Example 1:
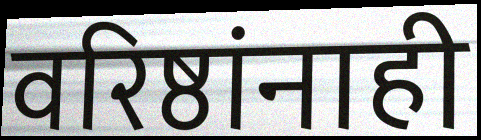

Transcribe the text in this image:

वरिष्ठांनाही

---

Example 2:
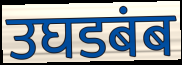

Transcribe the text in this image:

उघडबंब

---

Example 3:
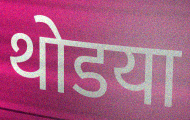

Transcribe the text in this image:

थोडया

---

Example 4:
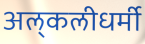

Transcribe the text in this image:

अल्कलीधर्मी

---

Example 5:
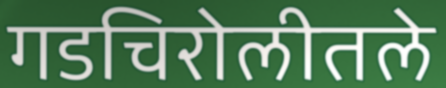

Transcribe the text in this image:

गडचिरोलीतले